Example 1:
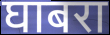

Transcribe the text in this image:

घाबरा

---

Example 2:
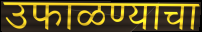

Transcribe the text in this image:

उफाळण्याचा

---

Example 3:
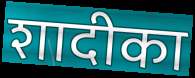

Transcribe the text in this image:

शादीका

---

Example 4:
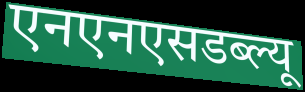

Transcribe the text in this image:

एनएनएसडब्ल्यू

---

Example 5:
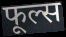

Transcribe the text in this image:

फूल्स